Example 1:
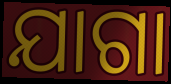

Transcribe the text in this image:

ଯାଗା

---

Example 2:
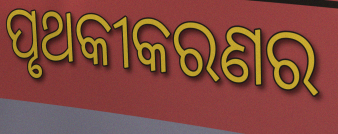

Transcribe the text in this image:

ପୃଥକୀକରଣର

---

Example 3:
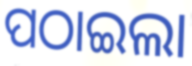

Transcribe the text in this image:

ପଠାଇଲା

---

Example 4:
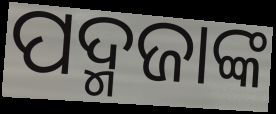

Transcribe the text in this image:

ପଦ୍ମଜାଙ୍କ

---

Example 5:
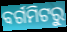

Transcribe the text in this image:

ବର୍ଗମିଟରୁ